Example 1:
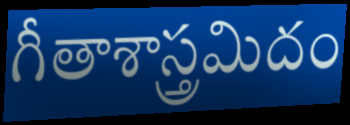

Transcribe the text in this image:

గీతాశాస్త్రమిదం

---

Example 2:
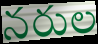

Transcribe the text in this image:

నరుల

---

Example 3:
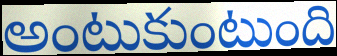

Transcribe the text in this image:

అంటుకుంటుంది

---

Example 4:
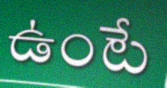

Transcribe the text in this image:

ఉంటే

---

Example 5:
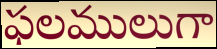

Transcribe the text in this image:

ఫలములుగా